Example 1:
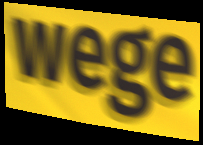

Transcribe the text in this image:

wege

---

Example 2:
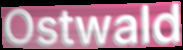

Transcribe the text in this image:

Ostwald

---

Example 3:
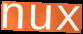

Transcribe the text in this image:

nux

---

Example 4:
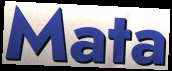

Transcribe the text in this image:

Mata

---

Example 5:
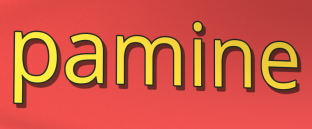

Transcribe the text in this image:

pamine